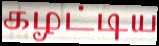
கழட்டிய